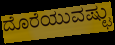
ದೊರೆಯುವಷ್ಟು